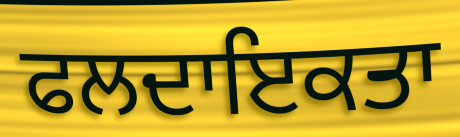
ਫਲਦਾਇਕਤਾ